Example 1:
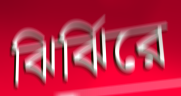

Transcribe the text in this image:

ঝির্ঝিরে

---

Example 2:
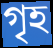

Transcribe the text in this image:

গৃহ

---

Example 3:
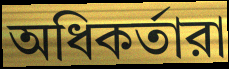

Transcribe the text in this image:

অধিকর্তারা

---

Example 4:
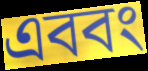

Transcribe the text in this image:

এববং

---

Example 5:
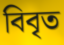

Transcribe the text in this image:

বিবৃত